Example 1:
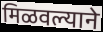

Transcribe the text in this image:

मिळवल्याने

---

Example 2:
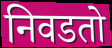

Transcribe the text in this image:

निवडतो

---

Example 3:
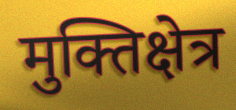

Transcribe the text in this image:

मुक्तिक्षेत्र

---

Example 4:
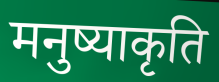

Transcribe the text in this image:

मनुष्याकृति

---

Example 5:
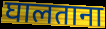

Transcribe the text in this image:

घालताना